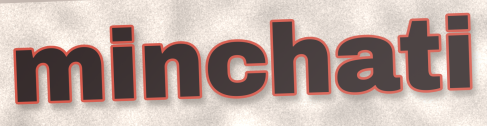
minchati